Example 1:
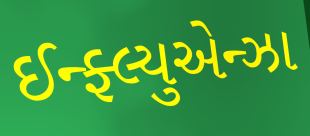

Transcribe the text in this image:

ઈન્ફ્લ્યુએન્ઝા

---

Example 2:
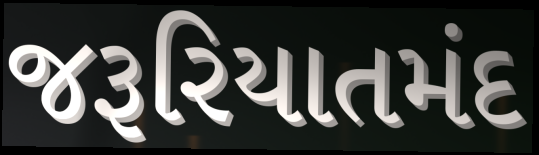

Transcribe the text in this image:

જરૂરિયાતમંદ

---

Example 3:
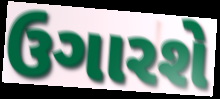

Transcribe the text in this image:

ઉગારશે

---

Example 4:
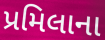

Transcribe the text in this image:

પ્રમિલાના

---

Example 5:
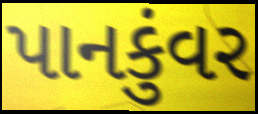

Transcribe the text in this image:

પાનકુંવર